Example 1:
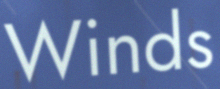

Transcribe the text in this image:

Winds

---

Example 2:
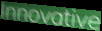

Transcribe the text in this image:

Innovative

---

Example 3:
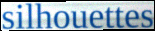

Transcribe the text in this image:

silhouettes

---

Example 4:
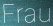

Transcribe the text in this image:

Frau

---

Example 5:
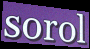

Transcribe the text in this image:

sorol